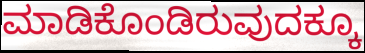
ಮಾಡಿಕೊಂಡಿರುವುದಕ್ಕೂ